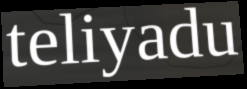
teliyadu